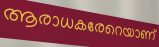
ആരാധകരേറെയാണ്